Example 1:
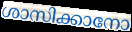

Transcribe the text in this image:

ശാസിക്കാനോ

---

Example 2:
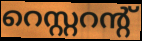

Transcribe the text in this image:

റെസ്റ്ററന്റ്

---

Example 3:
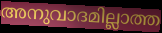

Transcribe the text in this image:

അനുവാദമില്ലാത്ത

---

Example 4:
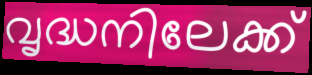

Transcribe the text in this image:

വൃദ്ധനിലേക്ക്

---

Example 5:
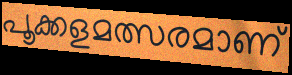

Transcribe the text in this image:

പൂക്കളമത്സരമാണ്